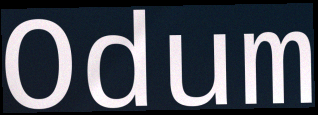
Odum